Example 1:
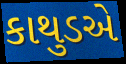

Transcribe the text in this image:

કાથુડએ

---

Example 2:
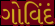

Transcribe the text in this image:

ગોવિંદં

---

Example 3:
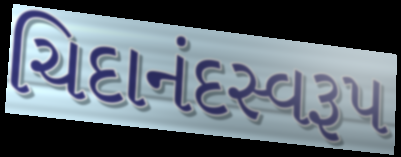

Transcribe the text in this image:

ચિદાનંદસ્વરૂપ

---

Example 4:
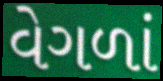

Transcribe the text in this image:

વેગળાં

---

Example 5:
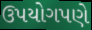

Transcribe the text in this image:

ઉપયોગપણે